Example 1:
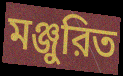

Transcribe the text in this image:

মঞ্জুরিত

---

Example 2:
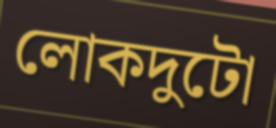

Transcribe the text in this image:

লোকদুটো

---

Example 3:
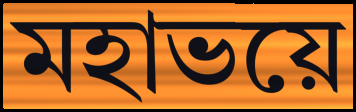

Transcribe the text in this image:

মহাভয়ে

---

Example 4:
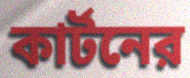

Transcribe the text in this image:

কার্টনের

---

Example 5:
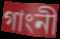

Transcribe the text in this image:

গাংনী